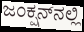
ಜಂಕ್ಷನ್‌ನಲ್ಲಿ